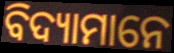
ବିଦ୍ୟାମାନେ